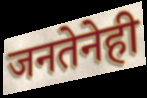
जनतेनेही